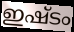
ഇഷ്ടം